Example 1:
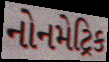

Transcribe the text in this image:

નોનમેટ્રિક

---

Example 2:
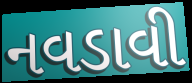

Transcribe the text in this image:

નવડાવી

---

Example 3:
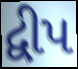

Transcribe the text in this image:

દ્વીપ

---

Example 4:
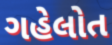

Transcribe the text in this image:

ગહેલોત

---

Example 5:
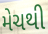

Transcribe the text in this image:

મેચથી